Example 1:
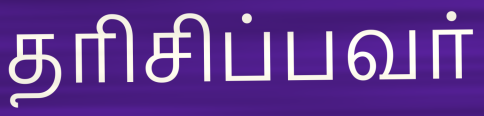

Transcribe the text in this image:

தரிசிப்பவர்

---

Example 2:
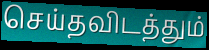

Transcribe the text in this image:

செய்தவிடத்தும்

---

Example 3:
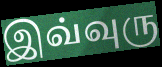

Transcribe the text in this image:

இவ்வுரு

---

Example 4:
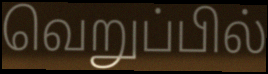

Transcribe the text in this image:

வெறுப்பில்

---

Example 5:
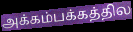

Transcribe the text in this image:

அக்கம்பக்கத்தில